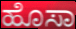
ಹೊಸಾ